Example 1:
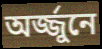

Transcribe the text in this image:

অর্জ্জুনে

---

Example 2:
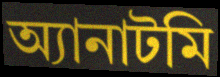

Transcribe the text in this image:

অ্যানাটমি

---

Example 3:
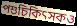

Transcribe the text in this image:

পশুচিকিৎসকও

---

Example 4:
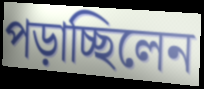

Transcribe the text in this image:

পড়াচ্ছিলেন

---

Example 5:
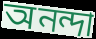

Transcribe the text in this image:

অনন্দা